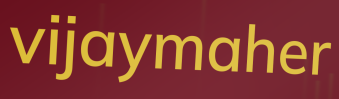
vijaymaher